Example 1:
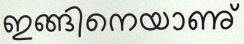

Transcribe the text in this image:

ഇങ്ങിനെയാണു്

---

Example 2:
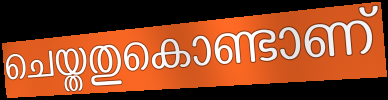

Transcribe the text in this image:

ചെയ്തതുകൊണ്ടാണ്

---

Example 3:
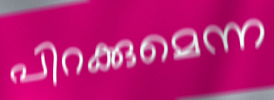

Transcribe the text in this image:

പിറക്കുമെന്ന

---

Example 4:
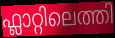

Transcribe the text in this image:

ഫ്ലാറ്റിലെത്തി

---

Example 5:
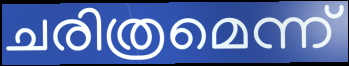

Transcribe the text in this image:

ചരിത്രമെന്ന്